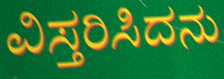
ವಿಸ್ತರಿಸಿದನು